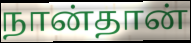
நான்தான்